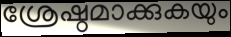
ശ്രേഷ്ഠമാക്കുകയും